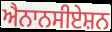
ਐਨਾਨਸੀਏਸ਼ਨ